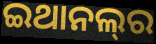
ଇଥାନଲ୍‌ର